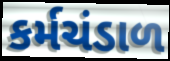
કર્મચંડાળ